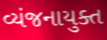
વ્યંજનાયુક્ત